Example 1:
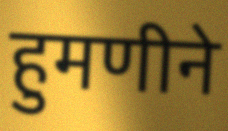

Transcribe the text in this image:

हुमणीने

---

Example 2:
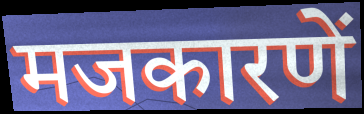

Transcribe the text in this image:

मजकारणें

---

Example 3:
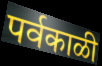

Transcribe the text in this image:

पर्वकाळी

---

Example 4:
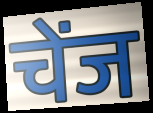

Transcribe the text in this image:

चेंज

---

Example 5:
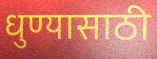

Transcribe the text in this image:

धुण्यासाठी